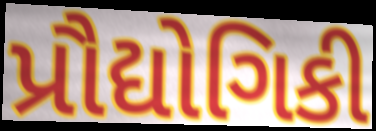
પ્રૌદ્યોગિકી